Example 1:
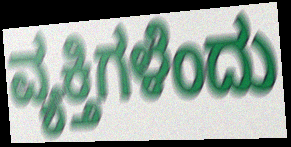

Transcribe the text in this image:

ವ್ಯಕ್ತಿಗಳೆಂದು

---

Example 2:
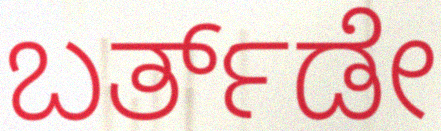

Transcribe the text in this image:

ಬರ್ತ್‌ಡೇ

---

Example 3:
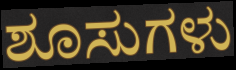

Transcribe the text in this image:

ಶೂಸುಗಳು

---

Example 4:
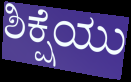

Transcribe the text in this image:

ಶಿಕ್ಷೆಯು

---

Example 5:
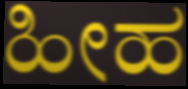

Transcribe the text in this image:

ಹೀಹ